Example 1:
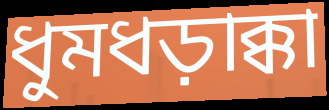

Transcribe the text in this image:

ধুমধড়াক্কা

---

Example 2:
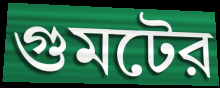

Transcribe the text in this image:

গুমটের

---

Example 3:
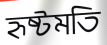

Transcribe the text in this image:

হৃষ্টমতি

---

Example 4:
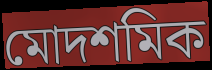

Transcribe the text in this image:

মোদশমিক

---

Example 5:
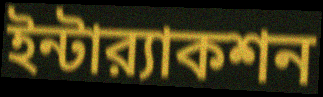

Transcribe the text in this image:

ইন্টার‍্যাকশন